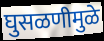
घुसळणीमुळे